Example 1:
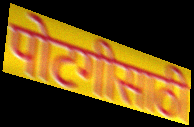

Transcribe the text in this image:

पोटगीसाठी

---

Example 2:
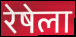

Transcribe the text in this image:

रेषेला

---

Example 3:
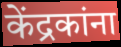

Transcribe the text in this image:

केंद्रकांना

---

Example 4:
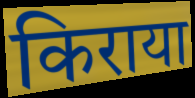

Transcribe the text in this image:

किराया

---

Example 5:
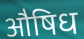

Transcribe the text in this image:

औषिध